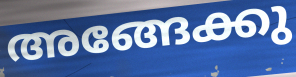
അങ്ങേക്കു